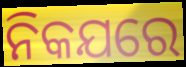
ନିକଯରେ